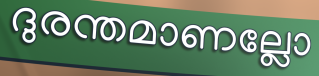
ദുരന്തമാണല്ലോ